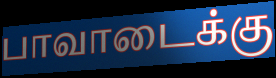
பாவாடைக்கு